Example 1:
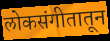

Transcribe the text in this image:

लोकसंगीतातून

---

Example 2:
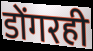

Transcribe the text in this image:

डोंगरही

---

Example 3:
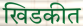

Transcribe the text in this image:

खिडकीत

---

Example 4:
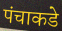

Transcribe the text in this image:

पंचाकडे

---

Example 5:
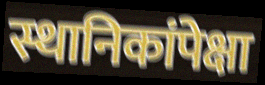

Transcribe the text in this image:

स्थानिकांपेक्षा